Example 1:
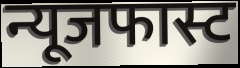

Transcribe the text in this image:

न्यूजफास्ट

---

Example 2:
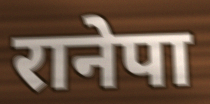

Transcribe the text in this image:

रानेपा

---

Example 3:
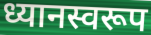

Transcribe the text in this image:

ध्यानस्वरूप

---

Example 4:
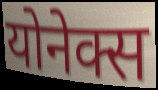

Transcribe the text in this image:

योनेक्स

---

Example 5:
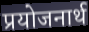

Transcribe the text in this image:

प्रयोजनार्थ